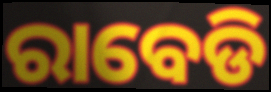
ରାବେଡି